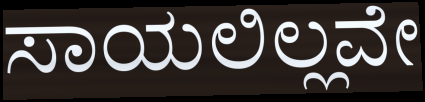
ಸಾಯಲಿಲ್ಲವೇ